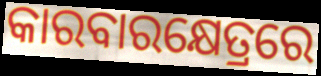
କାରବାରକ୍ଷେତ୍ରରେ